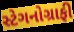
સ્ટેગનોગ્રાફી